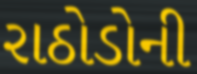
રાઠોડોની